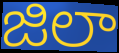
జిలా